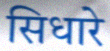
सिधारे